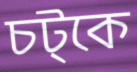
চট্‌কে